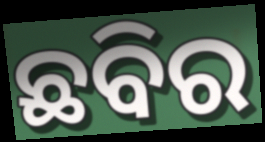
ଛବିର